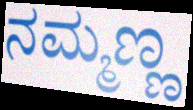
ನಮ್ಮಣ್ಣ